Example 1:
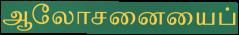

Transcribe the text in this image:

ஆலோசனையைப்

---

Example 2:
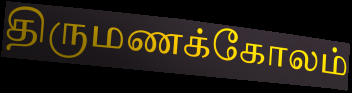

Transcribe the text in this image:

திருமணக்கோலம்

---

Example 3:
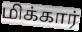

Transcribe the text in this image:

மிக்கார்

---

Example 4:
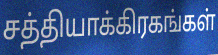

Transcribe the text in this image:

சத்தியாக்கிரகங்கள்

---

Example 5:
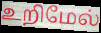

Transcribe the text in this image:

உறிமேல்